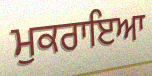
ਮੁਕਰਾਇਆ